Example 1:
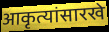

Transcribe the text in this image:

आकृत्यांसारखे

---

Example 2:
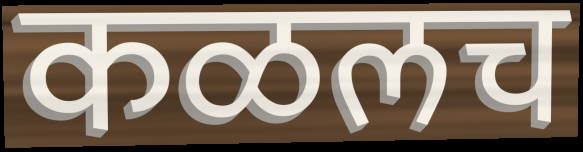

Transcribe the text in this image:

कळलच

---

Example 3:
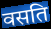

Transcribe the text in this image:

वसति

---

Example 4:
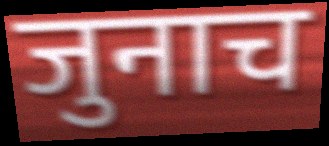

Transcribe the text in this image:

जुनाच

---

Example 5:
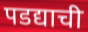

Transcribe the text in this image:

पडद्याची